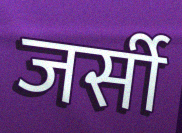
जर्सी